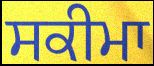
ਸਕੀਮਾ